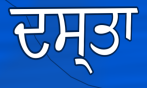
ਦਸ੍ਤਾ